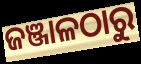
ଜଞ୍ଜାଳଠାରୁ